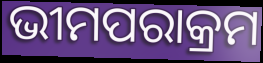
ଭୀମପରାକ୍ରମ